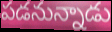
పడనున్నాడు